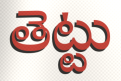
తెట్టు